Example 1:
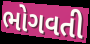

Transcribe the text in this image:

ભોગવતી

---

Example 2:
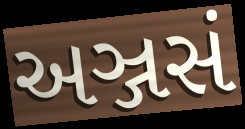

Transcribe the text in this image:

અઞ્જસં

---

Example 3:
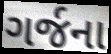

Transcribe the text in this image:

ગર્જના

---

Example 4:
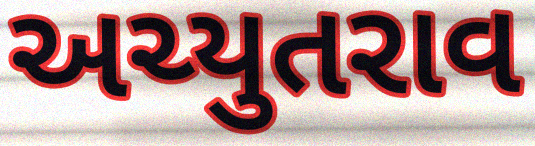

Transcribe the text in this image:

અચ્યુતરાવ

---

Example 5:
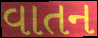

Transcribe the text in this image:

વાતન